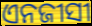
ଏନଜୀସୀ